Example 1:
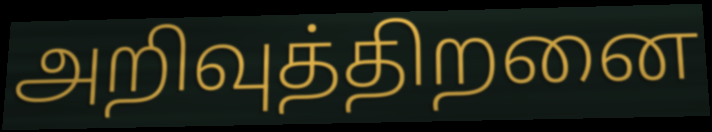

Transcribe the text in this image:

அறிவுத்திறனை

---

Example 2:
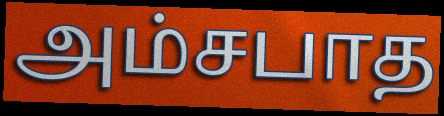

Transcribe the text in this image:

அம்சபாத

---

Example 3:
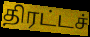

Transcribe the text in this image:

திரட்டச்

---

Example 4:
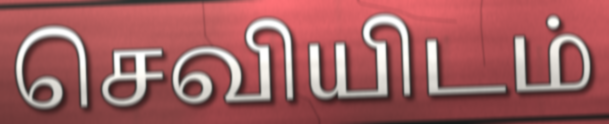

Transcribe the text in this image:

செவியிடம்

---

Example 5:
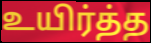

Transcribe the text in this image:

உயிர்த்த